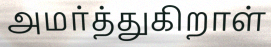
அமர்த்துகிறாள்